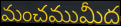
మంచముమీద